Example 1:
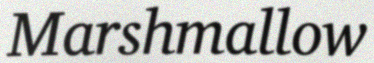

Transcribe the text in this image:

Marshmallow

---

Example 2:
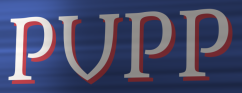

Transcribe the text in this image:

PUPP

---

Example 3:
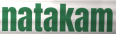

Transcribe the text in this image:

natakam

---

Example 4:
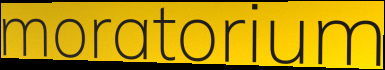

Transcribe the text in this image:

moratorium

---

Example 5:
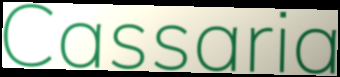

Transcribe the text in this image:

Cassaria